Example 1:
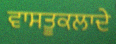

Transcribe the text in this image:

ਵਾਸਤੂਕਲਾਦੇ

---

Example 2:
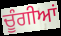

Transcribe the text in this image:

ਚੂੰਗੀਆਂ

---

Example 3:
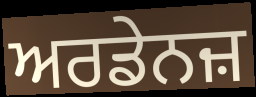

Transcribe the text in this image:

ਅਰਡੇਨਜ਼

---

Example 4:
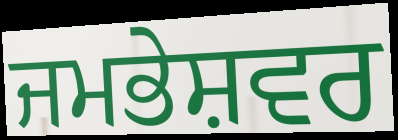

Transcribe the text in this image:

ਜਮਭੇਸ਼ਵਰ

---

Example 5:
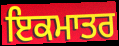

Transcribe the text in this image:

ਇਕਮਾਤਰ